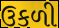
ઉકળી